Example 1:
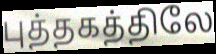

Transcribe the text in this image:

புத்தகத்திலே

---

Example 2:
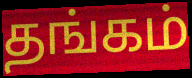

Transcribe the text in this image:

தங்கம்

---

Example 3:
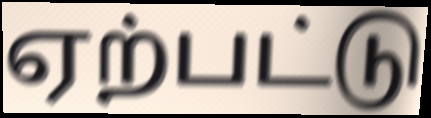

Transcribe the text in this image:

ஏற்பட்டு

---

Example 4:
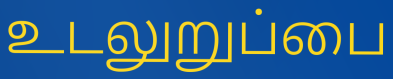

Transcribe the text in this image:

உடலுறுப்பை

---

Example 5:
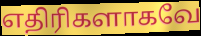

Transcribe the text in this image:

எதிரிகளாகவே